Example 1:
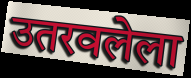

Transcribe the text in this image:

उतरवलेला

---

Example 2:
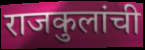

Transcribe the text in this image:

राजकुलांची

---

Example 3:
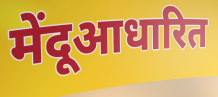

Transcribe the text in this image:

मेंदूआधारित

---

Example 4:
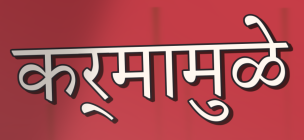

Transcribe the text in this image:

कर्मामुळे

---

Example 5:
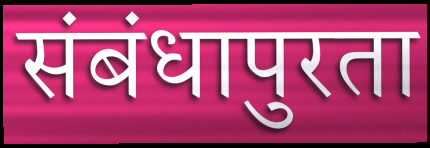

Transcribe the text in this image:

संबंधापुरता